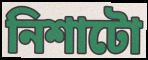
নিশাটো